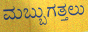
ಮಬ್ಬುಗತ್ತಲು